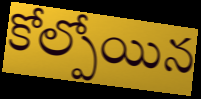
కోల్పోయిన